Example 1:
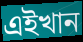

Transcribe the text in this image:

এইখান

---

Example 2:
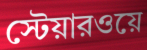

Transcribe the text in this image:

স্টেয়ারওয়ে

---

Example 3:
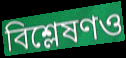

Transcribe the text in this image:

বিশ্লেষণও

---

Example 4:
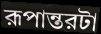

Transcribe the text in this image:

রূপান্তরটা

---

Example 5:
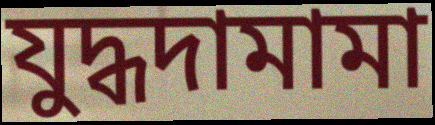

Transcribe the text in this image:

যুদ্ধদামামা